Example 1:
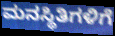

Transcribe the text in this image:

ಮನಸ್ಥಿತಿಗಳಿಗೆ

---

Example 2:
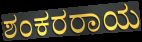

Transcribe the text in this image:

ಶಂಕರರಾಯ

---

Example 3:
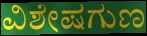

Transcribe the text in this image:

ವಿಶೇಷಗುಣ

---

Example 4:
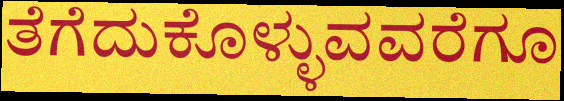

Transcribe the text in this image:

ತೆಗೆದುಕೊಳ್ಳುವವರೆಗೂ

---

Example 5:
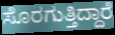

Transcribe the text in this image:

ಸೊರಗುತ್ತಿದ್ದಾರೆ